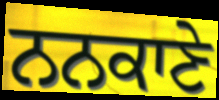
ਨਨਕਾਣੇ